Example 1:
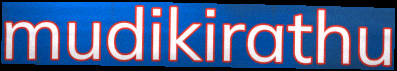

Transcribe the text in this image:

mudikirathu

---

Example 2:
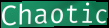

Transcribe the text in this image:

Chaotic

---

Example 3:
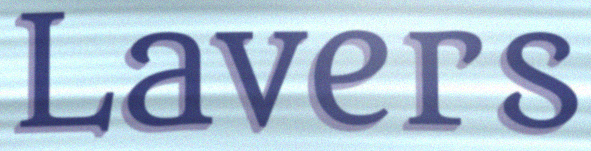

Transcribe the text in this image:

Lavers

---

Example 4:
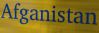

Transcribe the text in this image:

Afganistan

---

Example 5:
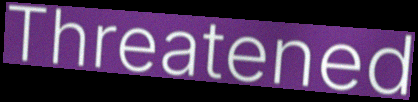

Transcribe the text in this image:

Threatened